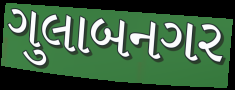
ગુલાબનગર